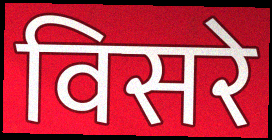
विसरे